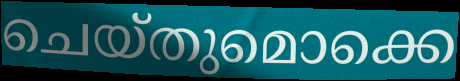
ചെയ്തുമൊക്കെ